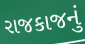
રાજકાજનું